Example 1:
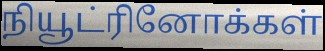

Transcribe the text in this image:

நியூட்ரினோக்கள்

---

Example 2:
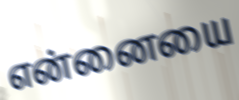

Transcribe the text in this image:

என்னையை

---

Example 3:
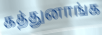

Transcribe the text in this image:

கத்துனாங்க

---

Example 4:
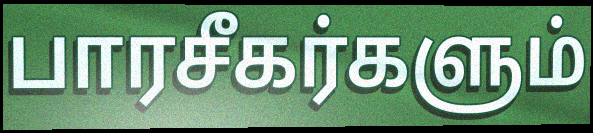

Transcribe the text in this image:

பாரசீகர்களும்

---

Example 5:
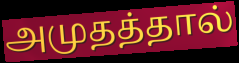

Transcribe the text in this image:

அமுதத்தால்